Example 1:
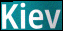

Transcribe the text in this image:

Kiev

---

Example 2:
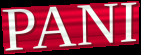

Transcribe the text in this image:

PANI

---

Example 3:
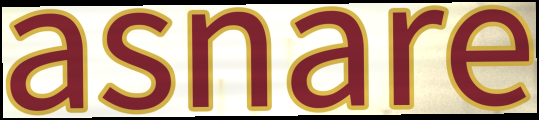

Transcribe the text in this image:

asnare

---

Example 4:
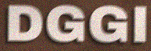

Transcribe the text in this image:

DGGI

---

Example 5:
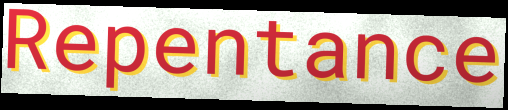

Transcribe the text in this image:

Repentance